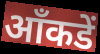
आँकडें